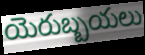
యెరుబ్బయలు